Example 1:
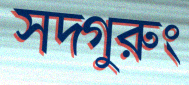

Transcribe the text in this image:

সদ্গুরুং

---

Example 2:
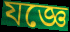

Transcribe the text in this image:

যজ্ঞে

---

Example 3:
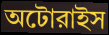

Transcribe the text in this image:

অটোরাইস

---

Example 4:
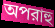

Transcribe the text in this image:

অপরাহু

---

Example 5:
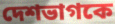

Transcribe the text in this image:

দেশভাগকে